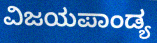
ವಿಜಯಪಾಂಡ್ಯ